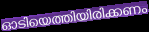
ഓടിയെത്തിയിരിക്കണം